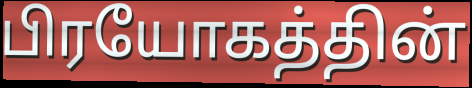
பிரயோகத்தின்